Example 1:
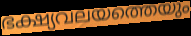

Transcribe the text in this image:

ഭക്ഷ്യവലയത്തെയും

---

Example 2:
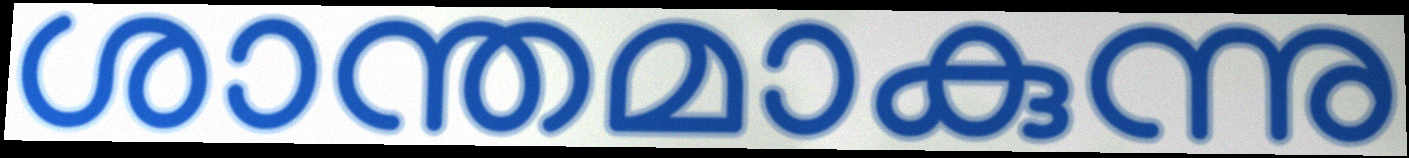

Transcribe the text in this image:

ശാന്തമാകുന്നു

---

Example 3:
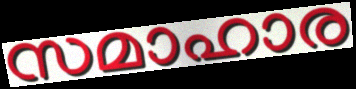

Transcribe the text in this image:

സമാഹാര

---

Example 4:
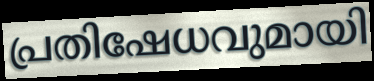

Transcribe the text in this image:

പ്രതിഷേധവുമായി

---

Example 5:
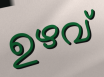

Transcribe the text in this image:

ഉഴവ്